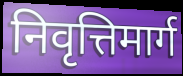
निवृत्तिमार्ग